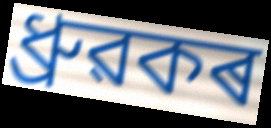
ধ্ৰুৱকৰ